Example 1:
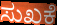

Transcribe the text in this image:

ಸುಖಕೆ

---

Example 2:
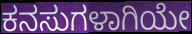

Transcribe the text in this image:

ಕನಸುಗಳಾಗಿಯೇ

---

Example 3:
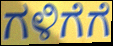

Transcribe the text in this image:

ಗಳಿಗೆಗೆ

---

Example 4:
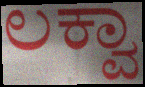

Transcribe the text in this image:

ಲಕ್ವಾ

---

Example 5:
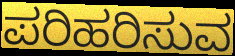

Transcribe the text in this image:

ಪರಿಹರಿಸುವ